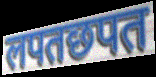
लपतछपत